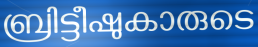
ബ്രിട്ടീഷുകാരുടെ